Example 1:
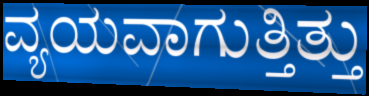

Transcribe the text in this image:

ವ್ಯಯವಾಗುತ್ತಿತ್ತು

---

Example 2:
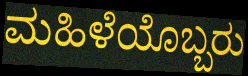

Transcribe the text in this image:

ಮಹಿಳೆಯೊಬ್ಬರು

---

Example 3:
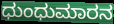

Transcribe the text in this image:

ಧುಂಧುಮಾರನ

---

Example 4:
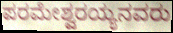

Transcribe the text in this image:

ಪರಮೇಶ್ವರಯ್ಯನವರು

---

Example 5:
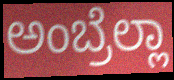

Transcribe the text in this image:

ಅಂಬ್ರೆಲ್ಲಾ